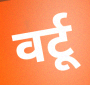
वर्टू